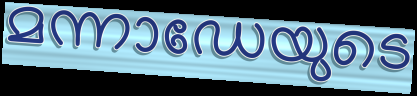
മന്നാഡേയുടെ